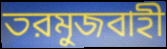
তরমুজবাহী